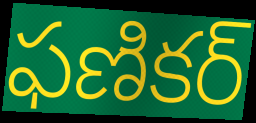
ఫణికర్